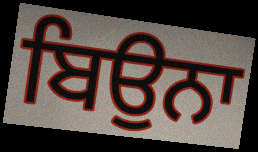
ਬਿਉਨਾ